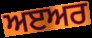
ਅੲਅਰ